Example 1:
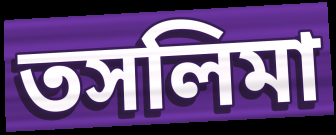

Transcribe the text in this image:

তসলিমা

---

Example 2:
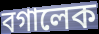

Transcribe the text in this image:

বগালেক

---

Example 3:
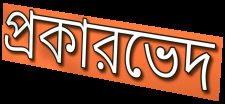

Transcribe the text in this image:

প্রকারভেদ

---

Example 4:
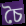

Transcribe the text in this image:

চৈ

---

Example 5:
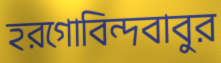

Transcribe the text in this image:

হরগোবিন্দবাবুর